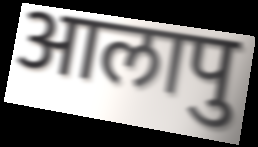
आलापु